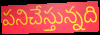
పనిచేస్తున్నది